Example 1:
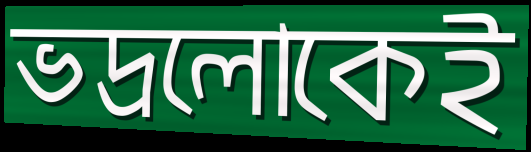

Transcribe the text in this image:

ভদ্রলোকেই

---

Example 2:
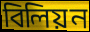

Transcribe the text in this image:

বিলিয়ন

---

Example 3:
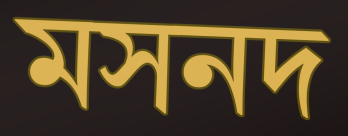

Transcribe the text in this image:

মসনদ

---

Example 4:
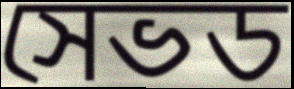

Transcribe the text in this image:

সেভড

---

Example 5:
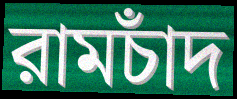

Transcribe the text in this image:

রামচাঁদ